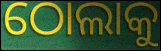
ଠୋଲାକୁ